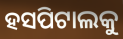
ହସପିଟାଲକୁ